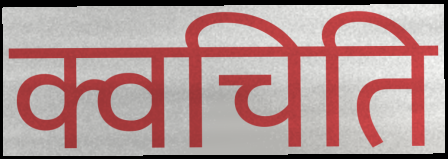
क्वचिति